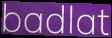
badlat